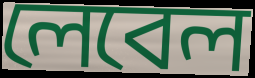
লেবেল